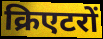
क्रिएटरों